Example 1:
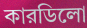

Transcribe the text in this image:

কারডিলো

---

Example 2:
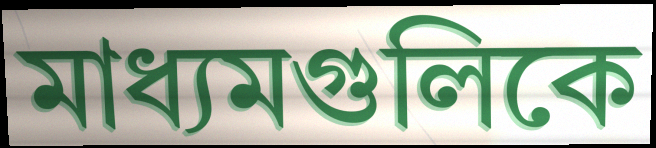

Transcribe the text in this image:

মাধ্যমগুলিকে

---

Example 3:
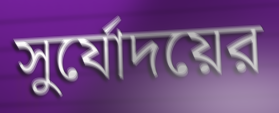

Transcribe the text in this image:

সুর্যোদয়ের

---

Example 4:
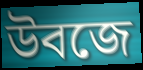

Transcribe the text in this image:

উবজে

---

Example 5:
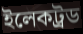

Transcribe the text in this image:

ইলেকট্রড